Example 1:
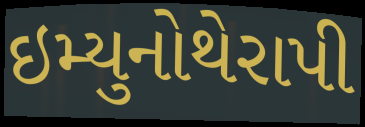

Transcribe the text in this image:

ઇમ્યુનોથેરાપી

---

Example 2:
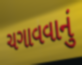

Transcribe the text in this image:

ચગાવવાનું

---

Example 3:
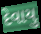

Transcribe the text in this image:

દેવાયુ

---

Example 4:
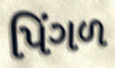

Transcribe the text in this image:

પિંગળ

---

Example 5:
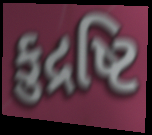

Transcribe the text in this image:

કુદ્રષ્ટિ